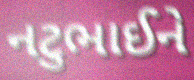
નટુભાઈને